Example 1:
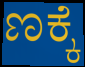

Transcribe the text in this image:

ಣಕ್ಕೆ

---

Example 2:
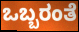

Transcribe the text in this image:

ಒಬ್ಬರಂತೆ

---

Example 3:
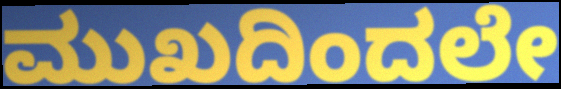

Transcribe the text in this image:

ಮುಖದಿಂದಲೇ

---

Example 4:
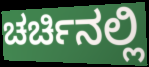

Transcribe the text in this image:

ಚರ್ಚಿನಲ್ಲಿ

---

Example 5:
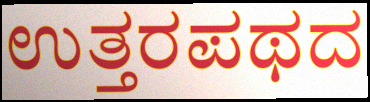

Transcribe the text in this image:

ಉತ್ತರಪಥದ